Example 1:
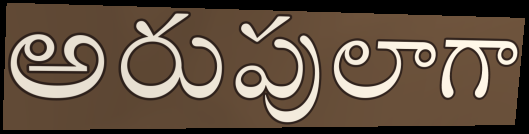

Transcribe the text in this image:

అరుపులాగా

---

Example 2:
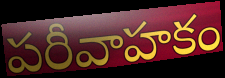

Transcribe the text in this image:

పరీవాహకం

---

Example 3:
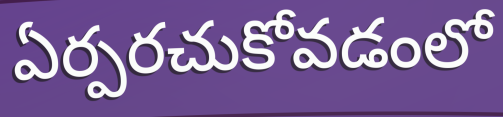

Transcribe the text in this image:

ఏర్పరచుకోవడంలో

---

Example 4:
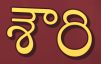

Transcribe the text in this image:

శౌరి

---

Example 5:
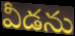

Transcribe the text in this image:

వీడను